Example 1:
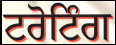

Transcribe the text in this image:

ਟਰੋਟਿੰਗ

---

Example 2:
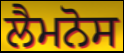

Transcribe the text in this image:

ਲੈਮਨੋਸ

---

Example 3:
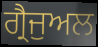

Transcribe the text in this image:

ਗ੍ਰੈਜੁਅਲ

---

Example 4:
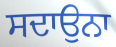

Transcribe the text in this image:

ਸਦਾਉਨਾ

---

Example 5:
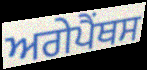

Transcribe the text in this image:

ਅਗੇਪੈਂਥਸ